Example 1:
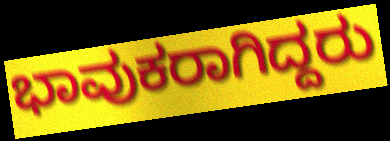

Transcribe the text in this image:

ಭಾವುಕರಾಗಿದ್ದರು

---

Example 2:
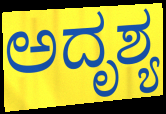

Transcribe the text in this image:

ಅದೃಶ್ಯ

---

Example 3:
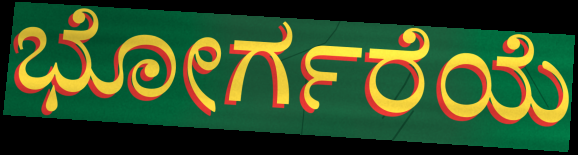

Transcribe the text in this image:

ಭೋರ್ಗರೆಯೆ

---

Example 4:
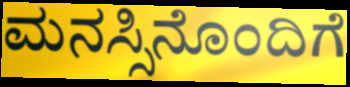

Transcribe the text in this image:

ಮನಸ್ಸಿನೊಂದಿಗೆ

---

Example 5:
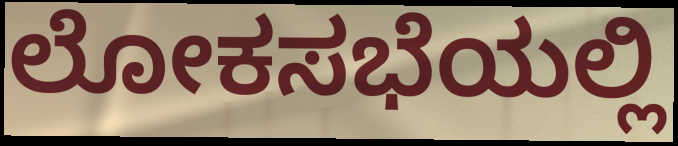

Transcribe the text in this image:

ಲೋಕಸಭೆಯಲ್ಲಿ